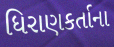
ધિરાણકર્તાના